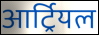
आर्ट्रियल